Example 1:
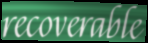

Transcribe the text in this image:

recoverable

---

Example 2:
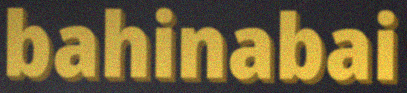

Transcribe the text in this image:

bahinabai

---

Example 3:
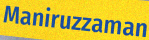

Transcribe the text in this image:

Maniruzzaman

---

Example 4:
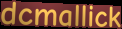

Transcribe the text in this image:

dcmallick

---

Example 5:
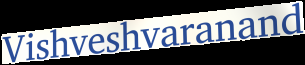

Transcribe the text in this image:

Vishveshvaranand